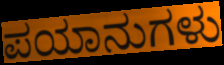
ಪಯಾನುಗಳು